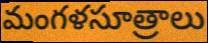
మంగళసూత్రాలు